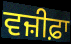
ਵਜ਼ੀਫ਼ਾ